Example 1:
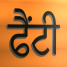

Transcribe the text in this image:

ਫੈਂਟੀ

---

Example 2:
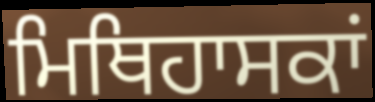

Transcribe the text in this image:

ਮਿਥਿਹਾਸਕਾਂ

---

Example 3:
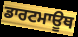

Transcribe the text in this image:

ਡਾਰਟਮਾਊਥ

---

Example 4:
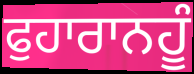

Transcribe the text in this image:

ਫੁਹਾਰਾਨਹੂੰ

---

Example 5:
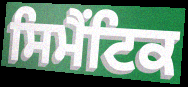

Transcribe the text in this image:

ਸਿਮੈਂਟਿਕ